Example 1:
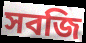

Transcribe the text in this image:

সবজি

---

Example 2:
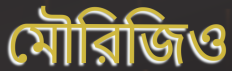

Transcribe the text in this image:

মৌরিজিও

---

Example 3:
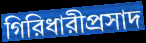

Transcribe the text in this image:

গিরিধারীপ্রসাদ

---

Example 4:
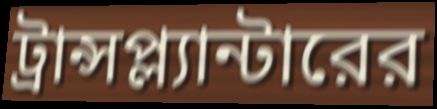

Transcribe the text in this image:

ট্রান্সপ্ল্যান্টারের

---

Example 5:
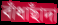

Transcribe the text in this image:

বাঁধাছাঁদা